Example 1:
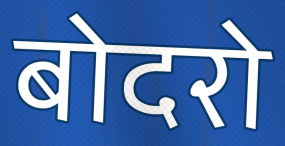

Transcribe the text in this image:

बोदरो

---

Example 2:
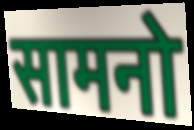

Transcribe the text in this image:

सामनो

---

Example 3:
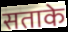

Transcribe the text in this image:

सताके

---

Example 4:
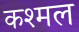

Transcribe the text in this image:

कश्मल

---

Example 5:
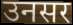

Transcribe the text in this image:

उनसर